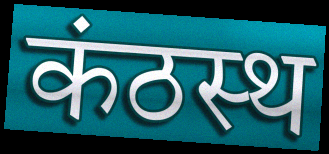
कंठस्थ